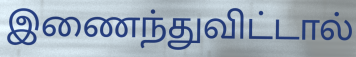
இணைந்துவிட்டால்